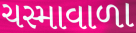
ચસ્માવાળા